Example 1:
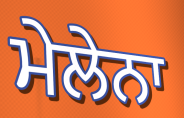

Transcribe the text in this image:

ਮੇਲੇਨਾ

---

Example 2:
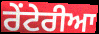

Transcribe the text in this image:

ਰੇਂਟੇਰੀਆ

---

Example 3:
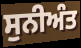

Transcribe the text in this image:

ਸੁਨੀਅੰਤ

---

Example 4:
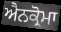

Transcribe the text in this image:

ਐਨਕ੍ਰੋਮਾ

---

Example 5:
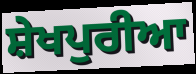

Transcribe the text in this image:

ਸ਼ੇਖਪੁਰੀਆ